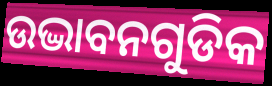
ଉଦ୍ଭାବନଗୁଡିକ